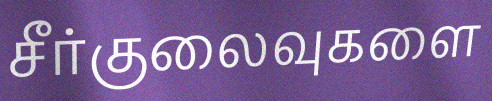
சீர்குலைவுகளை